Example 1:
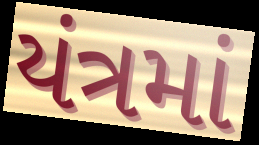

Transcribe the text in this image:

યંત્રમાં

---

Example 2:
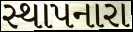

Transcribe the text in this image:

સ્થાપનારા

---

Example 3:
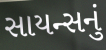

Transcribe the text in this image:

સાયન્સનું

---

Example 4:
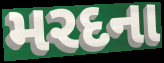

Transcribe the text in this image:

મરદના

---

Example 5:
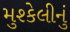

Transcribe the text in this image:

મુશ્કેલીનું